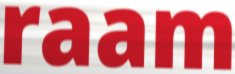
raam